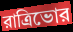
রাত্রিভোর